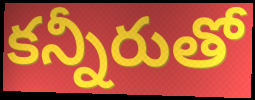
కన్నీరుతో